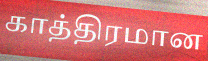
காத்திரமான